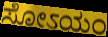
ಸೋಽಯಂ